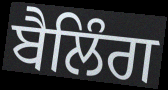
ਬੈਲਿੰਗ